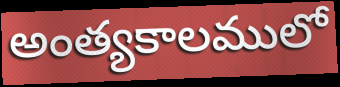
అంత్యకాలములో